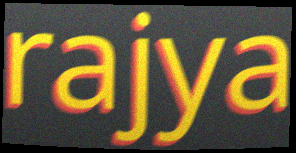
rajya